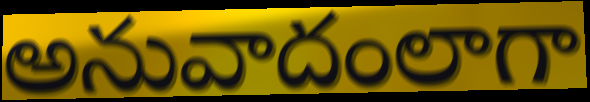
అనువాదంలాగా